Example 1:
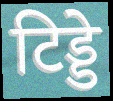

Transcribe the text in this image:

टिड्डे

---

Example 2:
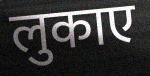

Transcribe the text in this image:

लुकाए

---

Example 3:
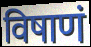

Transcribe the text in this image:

विषाणं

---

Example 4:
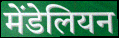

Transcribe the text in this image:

मेंडेलियन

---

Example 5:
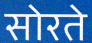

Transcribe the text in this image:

सोरते